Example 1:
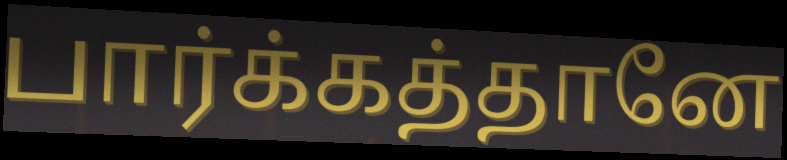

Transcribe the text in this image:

பார்க்கத்தானே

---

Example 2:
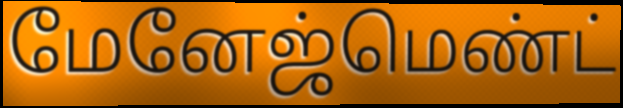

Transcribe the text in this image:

மேனேஜ்மெண்ட்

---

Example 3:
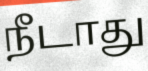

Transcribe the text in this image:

நீடாது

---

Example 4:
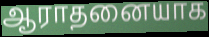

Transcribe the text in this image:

ஆராதனையாக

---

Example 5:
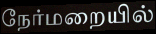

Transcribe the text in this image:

நேர்மறையில்